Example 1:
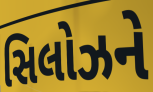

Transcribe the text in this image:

સિલોઝને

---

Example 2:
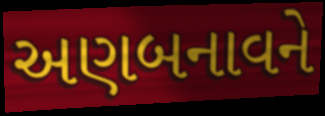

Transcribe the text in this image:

અણબનાવને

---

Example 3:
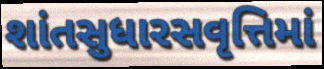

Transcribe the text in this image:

શાંતસુધારસવૃત્તિમાં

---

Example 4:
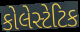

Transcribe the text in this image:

કોલેસ્ટેટિક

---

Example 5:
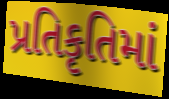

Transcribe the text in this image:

પ્રતિકૃતિમાં